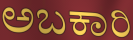
ಅಬಕಾರಿ